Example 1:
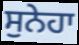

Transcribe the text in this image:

ਸੁਨੇਹਾ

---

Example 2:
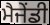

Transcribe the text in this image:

ਮੈਜੇਂਡੀ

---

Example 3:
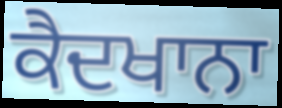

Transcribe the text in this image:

ਕੈਦਖਾਨਾ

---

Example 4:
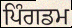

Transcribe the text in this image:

ਪਿੰਗਡਮ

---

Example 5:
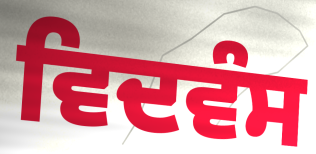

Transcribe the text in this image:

ਵਿਦਵੰਸ